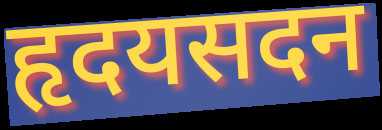
हृदयसदन